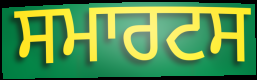
ਸਮਾਰਟਸ